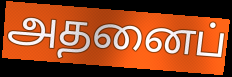
அதனைப்